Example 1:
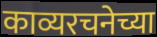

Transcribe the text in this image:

काव्यरचनेच्या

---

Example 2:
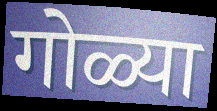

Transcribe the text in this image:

गोळ्या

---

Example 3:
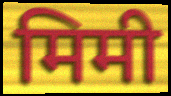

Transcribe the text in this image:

मिमी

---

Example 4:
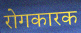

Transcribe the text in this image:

रोगकारक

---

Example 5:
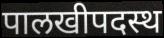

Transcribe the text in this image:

पालखीपदस्थ